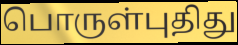
பொருள்புதிது